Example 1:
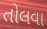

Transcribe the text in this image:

તોલવા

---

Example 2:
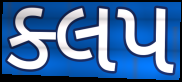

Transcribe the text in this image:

ક્લપ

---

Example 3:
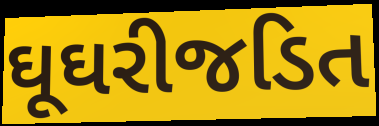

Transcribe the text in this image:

ઘૂઘરીજડિત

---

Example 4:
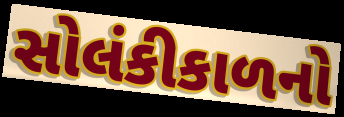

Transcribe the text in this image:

સોલંકીકાળનો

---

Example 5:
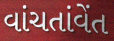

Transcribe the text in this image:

વાંચતાંવેંત